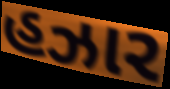
હઝાર